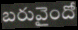
బరువైందో